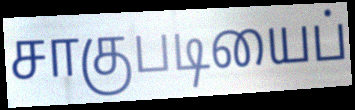
சாகுபடியைப்